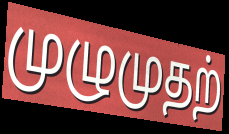
முழுமுதற்